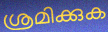
ശ്രമിക്കുക